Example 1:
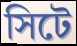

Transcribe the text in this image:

সিটে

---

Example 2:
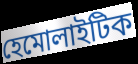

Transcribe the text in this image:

হেমোলাইটিক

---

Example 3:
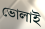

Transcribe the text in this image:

ভোলাই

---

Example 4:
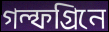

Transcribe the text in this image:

গল্ফগ্রিনে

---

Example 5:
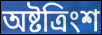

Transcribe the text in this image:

অষ্টত্রিংশ